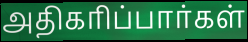
அதிகரிப்பார்கள்